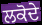
ਲਕੋਦੇ